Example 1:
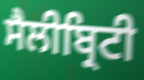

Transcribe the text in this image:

ਸੈਲੀਬ੍ਰਿਟੀ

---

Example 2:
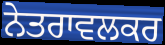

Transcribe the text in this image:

ਨੇਤਰਾਵਲਕਰ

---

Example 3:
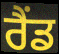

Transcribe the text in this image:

ਰੈਂਡ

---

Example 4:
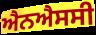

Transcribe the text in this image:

ਐਨਐਸਸੀ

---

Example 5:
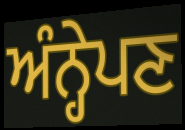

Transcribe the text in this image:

ਅੰਨ੍ਹੇਪਣ